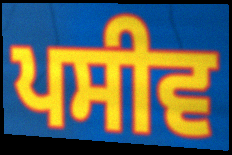
ਪਸੀਵ